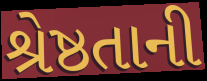
શ્રેષ્ઠતાની